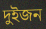
দুইজন